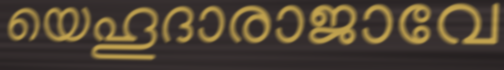
യെഹൂദാരാജാവേ